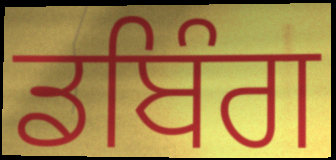
ਡਬਿੰਗ